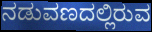
ನಡುವಣದಲ್ಲಿರುವ